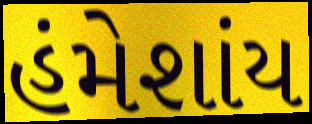
હંમેશાંય